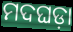
ମଦଘଡ଼ା